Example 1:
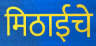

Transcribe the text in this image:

मिठाईचे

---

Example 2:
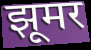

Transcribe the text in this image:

झूमर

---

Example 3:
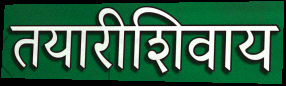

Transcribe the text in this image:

तयारीशिवाय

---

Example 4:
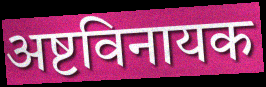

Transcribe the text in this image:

अष्टविनायक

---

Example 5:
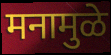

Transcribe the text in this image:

मनामुळे